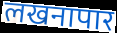
लखनापार